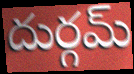
దుర్గమ్